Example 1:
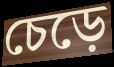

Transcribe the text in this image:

চেড়ে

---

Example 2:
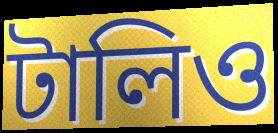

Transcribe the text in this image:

টালিও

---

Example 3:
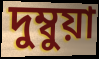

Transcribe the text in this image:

দুম্বুয়া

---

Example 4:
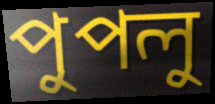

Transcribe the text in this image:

পুপলু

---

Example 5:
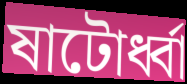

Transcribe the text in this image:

ষাটোর্ধ্বা